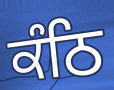
ਕੰਠਿ